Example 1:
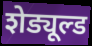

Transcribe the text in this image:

शेड्यूल्ड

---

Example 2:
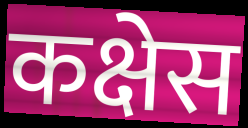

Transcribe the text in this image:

कक्षेस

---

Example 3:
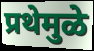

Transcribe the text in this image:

प्रथेमुळे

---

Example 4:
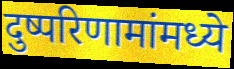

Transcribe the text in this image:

दुष्परिणामांमध्ये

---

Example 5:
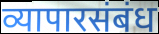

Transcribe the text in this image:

व्यापारसंबंध